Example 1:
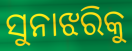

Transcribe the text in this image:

ସୁନାଝରିକୁ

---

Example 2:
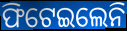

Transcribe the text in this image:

ଫିଟେଇଲେନି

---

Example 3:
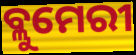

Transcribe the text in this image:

ବ୍ଲୁମେରୀ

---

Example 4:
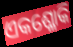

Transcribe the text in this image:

ଏକଶ୍ଳୋକି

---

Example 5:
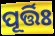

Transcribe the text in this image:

ପୂର୍ତ୍ତିଃ